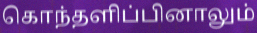
கொந்தளிப்பினாலும்